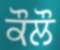
ਕੌਲੌ